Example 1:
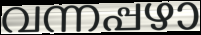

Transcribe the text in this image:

വന്നപ്പഴാ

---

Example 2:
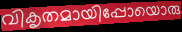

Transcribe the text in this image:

വികൃതമായിപ്പോയൊരു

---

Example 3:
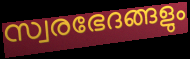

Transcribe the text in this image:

സ്വരഭേദങ്ങളും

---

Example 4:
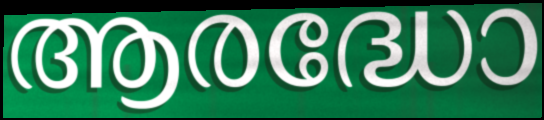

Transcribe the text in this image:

ആരദ്ധോ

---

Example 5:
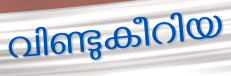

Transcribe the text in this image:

വിണ്ടുകീറിയ